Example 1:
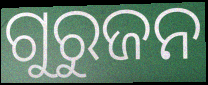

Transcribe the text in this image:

ଗୁରୁଜନ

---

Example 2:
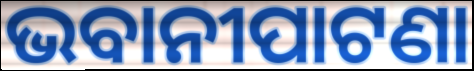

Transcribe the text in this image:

ଭବାନୀପାଟଣା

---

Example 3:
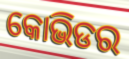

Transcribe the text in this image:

କୋଭିଡର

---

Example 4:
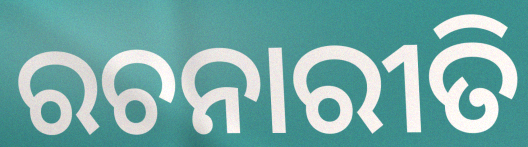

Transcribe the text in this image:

ରଚନାରୀତି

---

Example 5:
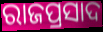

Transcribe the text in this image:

ରାଜପ୍ରସାଦ